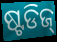
ଷ୍ଟଡିଜ୍